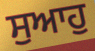
ਸੁਆਹੁ